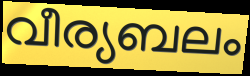
വീര്യബലം